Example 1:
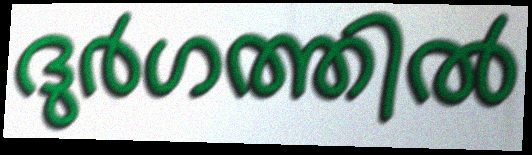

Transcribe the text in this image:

ദുർഗത്തിൽ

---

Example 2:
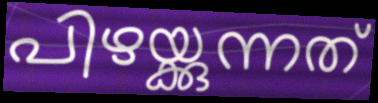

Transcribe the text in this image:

പിഴയ്ക്കുന്നത്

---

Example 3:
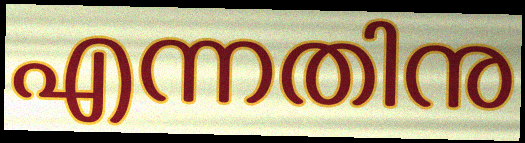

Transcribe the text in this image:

എന്നതിനു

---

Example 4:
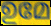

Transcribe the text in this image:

ഉമേ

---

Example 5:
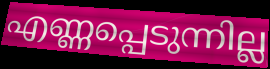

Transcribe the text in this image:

എണ്ണപ്പെടുന്നില്ല